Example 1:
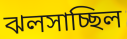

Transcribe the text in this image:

ঝলসাচ্ছিল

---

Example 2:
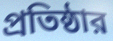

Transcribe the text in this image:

প্রতিষ্ঠার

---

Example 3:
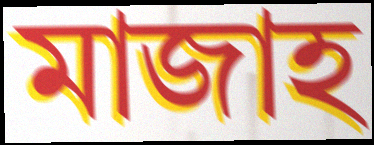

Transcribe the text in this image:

মাজাহ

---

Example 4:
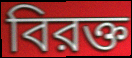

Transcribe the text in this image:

বিরক্ত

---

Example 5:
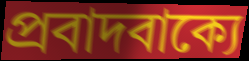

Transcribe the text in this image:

প্রবাদবাক্যে